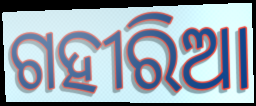
ଗହୀରିଆ